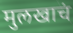
मुलखाचं